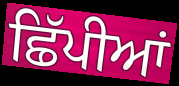
ਛਿੱਪੀਆਂ